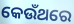
କେଉଁଥରେ